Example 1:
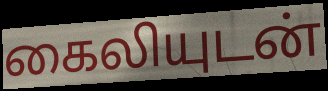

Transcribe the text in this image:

கைலியுடன்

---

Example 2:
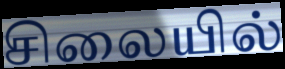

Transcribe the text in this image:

சிலையில்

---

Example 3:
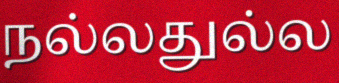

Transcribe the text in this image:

நல்லதுல்ல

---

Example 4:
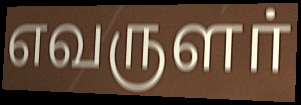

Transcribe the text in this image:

எவருளர்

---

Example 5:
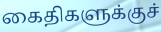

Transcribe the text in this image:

கைதிகளுக்குச்